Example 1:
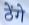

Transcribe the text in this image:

ठेंगे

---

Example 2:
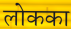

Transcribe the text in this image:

लोकका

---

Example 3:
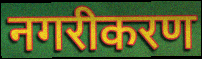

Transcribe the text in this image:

नगरीकरण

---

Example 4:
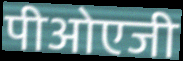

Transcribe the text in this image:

पीओएजी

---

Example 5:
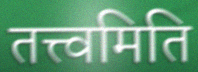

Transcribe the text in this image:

तत्त्वमिति